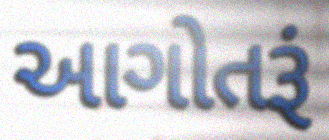
આગોતરૂં